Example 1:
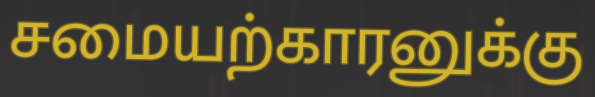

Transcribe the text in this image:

சமையற்காரனுக்கு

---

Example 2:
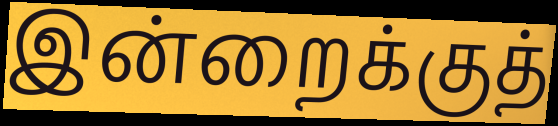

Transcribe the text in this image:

இன்றைக்குத்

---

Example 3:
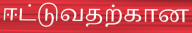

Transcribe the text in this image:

ஈட்டுவதற்கான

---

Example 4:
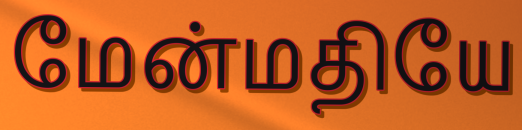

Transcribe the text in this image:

மேன்மதியே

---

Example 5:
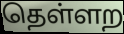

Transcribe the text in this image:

தெள்ளற